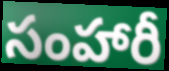
సంహారీ